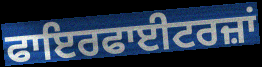
ਫਾਇਰਫਾਈਟਰਜ਼ਾਂ